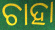
ଚାହା